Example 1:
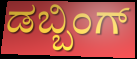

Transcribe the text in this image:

ಡಬ್ಬಿಂಗ್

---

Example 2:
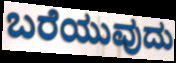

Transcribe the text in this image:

ಬರೆಯುವುದು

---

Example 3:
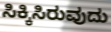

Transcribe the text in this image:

ಸಿಕ್ಕಿಸಿರುವುದು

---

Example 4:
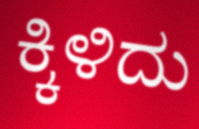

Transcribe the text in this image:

ಕ್ಕಿಳಿದು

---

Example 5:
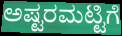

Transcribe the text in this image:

ಅಷ್ಟರಮಟ್ಟಿಗೆ